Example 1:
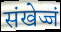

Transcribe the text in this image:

संखेज्जं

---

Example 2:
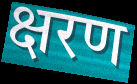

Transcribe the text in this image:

क्षरण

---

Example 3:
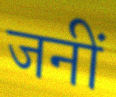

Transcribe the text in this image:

जनीं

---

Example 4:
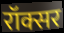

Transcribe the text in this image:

रॉक्सर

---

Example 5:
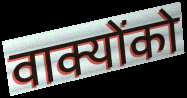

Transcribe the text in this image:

वाक्योंको